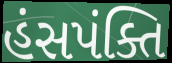
હંસપંક્તિ